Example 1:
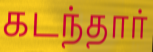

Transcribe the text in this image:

கடந்தார்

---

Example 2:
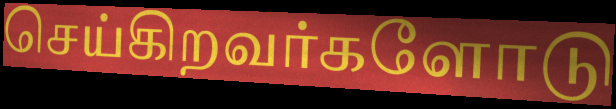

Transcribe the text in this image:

செய்கிறவர்களோடு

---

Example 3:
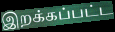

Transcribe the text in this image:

இறக்கப்பட்ட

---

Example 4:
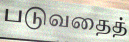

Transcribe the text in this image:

படுவதைத்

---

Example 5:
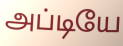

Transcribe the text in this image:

அப்டியே